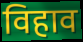
विहाव